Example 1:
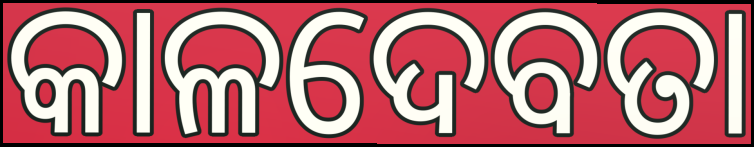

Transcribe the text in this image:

କାଳଦେବତା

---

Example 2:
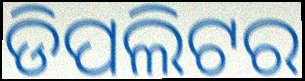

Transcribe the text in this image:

ଡିପଲିଟର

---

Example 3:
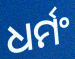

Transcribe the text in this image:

ଧର୍ମଂ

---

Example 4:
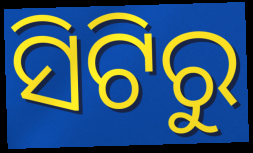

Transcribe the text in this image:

ସିଟିରୁ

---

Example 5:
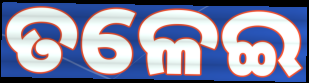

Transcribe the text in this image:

ତଳେଇ